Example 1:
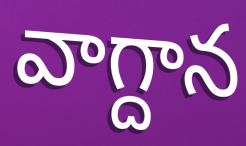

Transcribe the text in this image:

వాగ్దాన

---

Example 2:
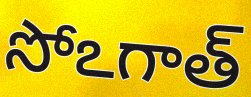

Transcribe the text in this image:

సోఽగాత్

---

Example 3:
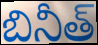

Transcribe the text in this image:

బినీత్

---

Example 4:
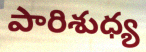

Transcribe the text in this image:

పారిశుధ్య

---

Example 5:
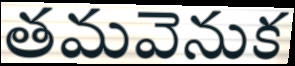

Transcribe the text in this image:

తమవెనుక